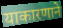
याकारणाने